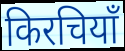
किरचियाँ